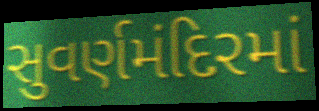
સુવર્ણમંદિરમાં